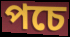
পচে